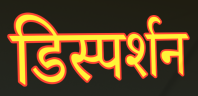
डिस्पर्शन